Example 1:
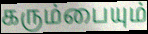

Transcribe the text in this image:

கரும்பையும்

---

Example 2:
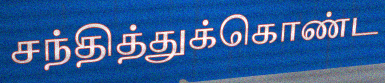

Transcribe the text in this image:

சந்தித்துக்கொண்ட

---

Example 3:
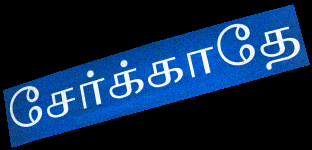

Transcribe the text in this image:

சேர்க்காதே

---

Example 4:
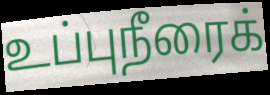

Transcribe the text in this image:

உப்புநீரைக்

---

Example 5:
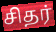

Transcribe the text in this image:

சிதர்